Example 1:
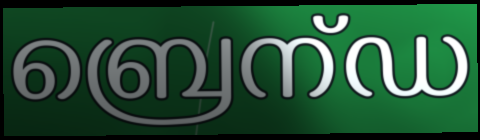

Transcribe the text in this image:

ബ്രെന്ഡ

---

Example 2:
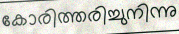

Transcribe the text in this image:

കോരിത്തരിച്ചുനിന്നു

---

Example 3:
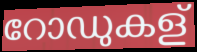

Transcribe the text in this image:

റോഡുകള്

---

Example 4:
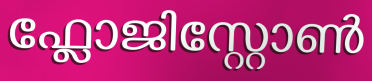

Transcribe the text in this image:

ഫ്ലോജിസ്റ്റോൺ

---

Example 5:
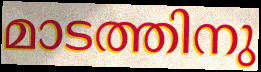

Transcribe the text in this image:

മാടത്തിനു